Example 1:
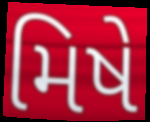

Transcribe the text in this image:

મિષે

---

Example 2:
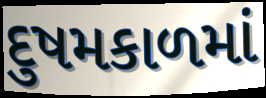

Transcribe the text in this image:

દુષમકાળમાં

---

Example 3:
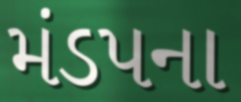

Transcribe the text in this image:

મંડપના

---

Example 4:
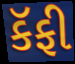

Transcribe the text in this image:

કૅફી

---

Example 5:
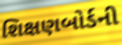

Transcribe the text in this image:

શિક્ષણબોર્ડની